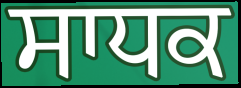
ਸਾਧਕ